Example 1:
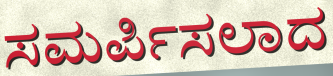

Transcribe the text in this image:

ಸಮರ್ಪಿಸಲಾದ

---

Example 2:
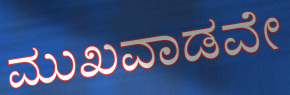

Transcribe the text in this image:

ಮುಖವಾಡವೇ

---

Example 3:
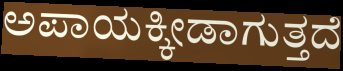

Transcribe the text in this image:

ಅಪಾಯಕ್ಕೀಡಾಗುತ್ತದೆ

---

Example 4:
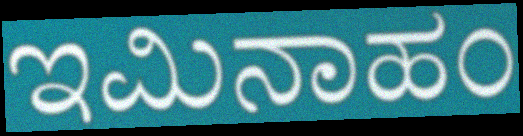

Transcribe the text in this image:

ಇಮಿನಾಹಂ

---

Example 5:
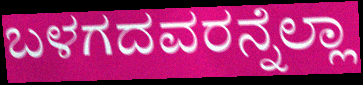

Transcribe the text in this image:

ಬಳಗದವರನ್ನೆಲ್ಲಾ